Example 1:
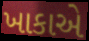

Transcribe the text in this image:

ખાકાએ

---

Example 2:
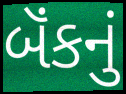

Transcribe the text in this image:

બૅંકનું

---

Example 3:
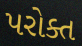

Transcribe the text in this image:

પરોક્ત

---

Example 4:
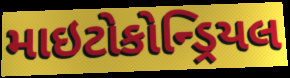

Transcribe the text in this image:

માઇટોકોન્ડ્રિયલ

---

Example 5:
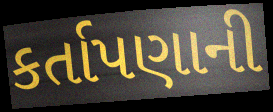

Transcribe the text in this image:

કર્તાપણાની